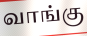
வாங்கு